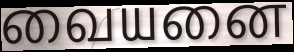
வையனை